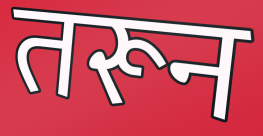
तरून